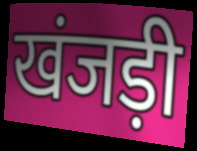
खंजड़ी